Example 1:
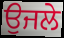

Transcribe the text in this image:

ਉਜਲੇ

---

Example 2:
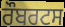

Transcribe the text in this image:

ਰੌਬਰਟਸ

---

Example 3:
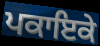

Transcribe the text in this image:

ਪਕਾਇਕੇ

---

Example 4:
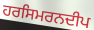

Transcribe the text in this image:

ਹਰਸਿਮਰਨਦੀਪ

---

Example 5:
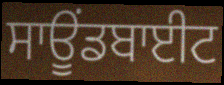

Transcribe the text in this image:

ਸਾਊਂਡਬਾਈਟ